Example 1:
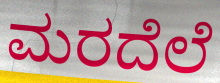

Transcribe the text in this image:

ಮರದೆಲೆ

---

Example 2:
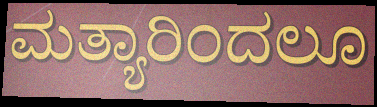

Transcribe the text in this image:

ಮತ್ಯಾರಿಂದಲೂ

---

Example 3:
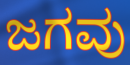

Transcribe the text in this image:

ಜಗವು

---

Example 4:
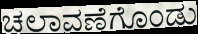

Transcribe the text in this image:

ಚಲಾವಣೆಗೊಂಡು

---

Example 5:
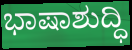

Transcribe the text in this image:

ಭಾಷಾಶುದ್ಧಿ